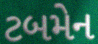
ટબમેન